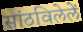
सांठविलेलें